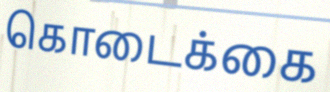
கொடைக்கை